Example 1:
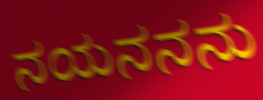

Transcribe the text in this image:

ನಯನನನು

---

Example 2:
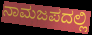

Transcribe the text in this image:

ನಾಮಜಪದಲ್ಲಿ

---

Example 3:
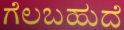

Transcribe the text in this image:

ಗೆಲಬಹುದೆ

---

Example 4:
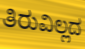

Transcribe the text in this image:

ತಿರುವಿಲ್ಲದ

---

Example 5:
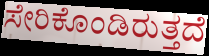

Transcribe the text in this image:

ಸೇರಿಕೊಂಡಿರುತ್ತದೆ